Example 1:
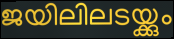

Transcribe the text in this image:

ജയിലിലടയ്ക്കും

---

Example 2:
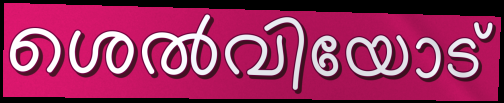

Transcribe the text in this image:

ശെൽവിയോട്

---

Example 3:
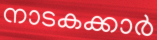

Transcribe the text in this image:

നാടകക്കാർ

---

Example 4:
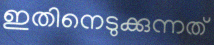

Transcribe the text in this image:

ഇതിനെടുക്കുന്നത്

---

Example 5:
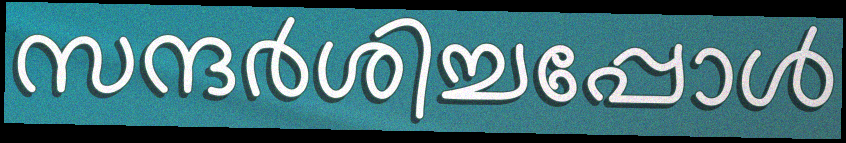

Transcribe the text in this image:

സന്ദർശിച്ചപ്പോൾ